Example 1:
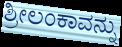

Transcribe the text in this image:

ಶ್ರೀಲಂಕಾವನ್ನು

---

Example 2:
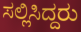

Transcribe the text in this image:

ಸಲ್ಲಿಸಿದ್ದರು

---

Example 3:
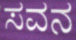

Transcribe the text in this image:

ಸವನ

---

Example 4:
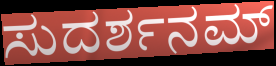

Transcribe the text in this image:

ಸುದರ್ಶನಮ್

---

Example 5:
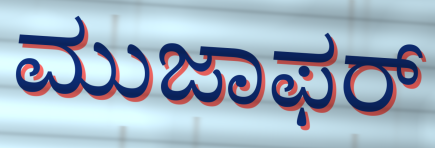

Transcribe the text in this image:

ಮುಜಾಫರ್